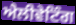
ਐਲੀਵੇਟਿੰਗ